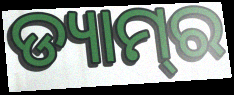
ଡ୍ୟାମ୍‍ର